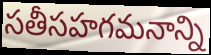
సతీసహగమనాన్ని